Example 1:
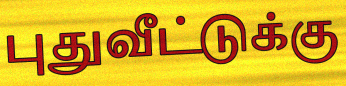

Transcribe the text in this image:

புதுவீட்டுக்கு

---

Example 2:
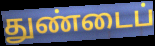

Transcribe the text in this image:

துண்டைப்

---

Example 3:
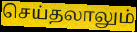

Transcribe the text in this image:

செய்தலாலும்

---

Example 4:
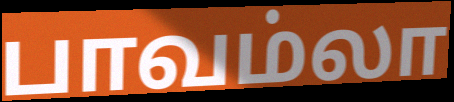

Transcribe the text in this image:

பாவம்லா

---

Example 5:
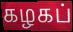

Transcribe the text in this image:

கழகப்